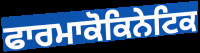
ਫਾਰਮਾਕੋਕਿਨੇਟਿਕ